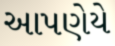
આપણેયે